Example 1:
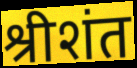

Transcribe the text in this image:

श्रीशंत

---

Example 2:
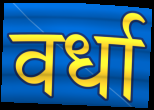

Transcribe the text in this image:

वर्धा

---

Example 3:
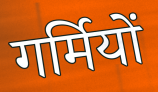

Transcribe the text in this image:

गर्मियों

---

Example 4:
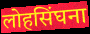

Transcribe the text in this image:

लोहसिंघना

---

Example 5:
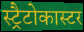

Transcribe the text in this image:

स्ट्रैटोकास्टर